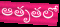
ఆతృతలో